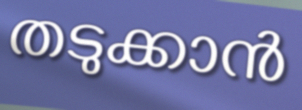
തടുക്കാൻ